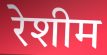
रेशीम